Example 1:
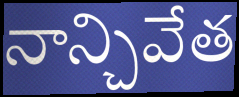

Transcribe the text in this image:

నాన్చివేత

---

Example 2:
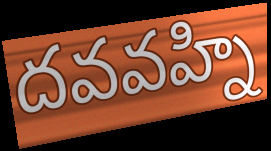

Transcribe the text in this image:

దవవహ్ని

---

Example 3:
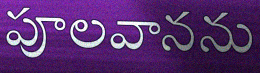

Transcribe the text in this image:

పూలవానను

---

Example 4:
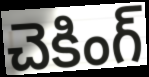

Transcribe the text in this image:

చెకింగ్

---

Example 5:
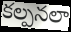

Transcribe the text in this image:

కల్పనలా